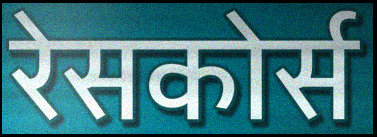
रेसकोर्स